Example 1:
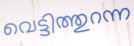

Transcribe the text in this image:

വെട്ടിത്തുറന്ന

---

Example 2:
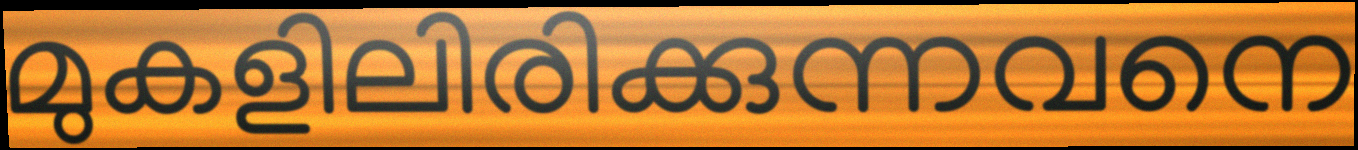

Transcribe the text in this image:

മുകളിലിരിക്കുന്നവനെ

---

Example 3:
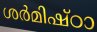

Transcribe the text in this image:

ശർമിഷ്ഠാ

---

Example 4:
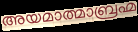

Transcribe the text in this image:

അയമാത്മാബ്രഹ്മ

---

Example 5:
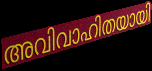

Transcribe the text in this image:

അവിവാഹിതയായി